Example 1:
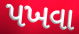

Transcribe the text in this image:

પખવા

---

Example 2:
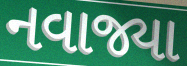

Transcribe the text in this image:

નવાજ્યા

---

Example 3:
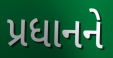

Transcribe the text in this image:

પ્રધાનને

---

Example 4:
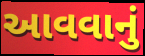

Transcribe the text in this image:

આવવાનું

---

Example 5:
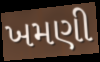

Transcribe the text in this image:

ખમણી